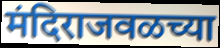
मंदिराजवळच्या